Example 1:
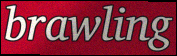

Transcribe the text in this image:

brawling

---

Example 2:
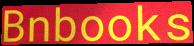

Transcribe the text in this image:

Bnbooks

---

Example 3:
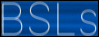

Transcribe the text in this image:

BSLs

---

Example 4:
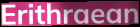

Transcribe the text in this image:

Erithraean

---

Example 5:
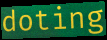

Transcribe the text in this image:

doting